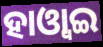
ହାଓ୍ୱାଇ